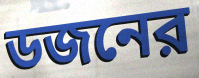
ডজনের